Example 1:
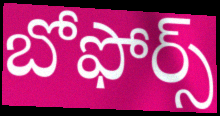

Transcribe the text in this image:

బోఫోర్స్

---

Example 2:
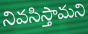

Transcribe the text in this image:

నివసిస్తామని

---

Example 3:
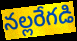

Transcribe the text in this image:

నల్లరేగడి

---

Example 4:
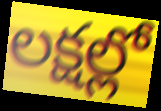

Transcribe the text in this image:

లక్షల్లో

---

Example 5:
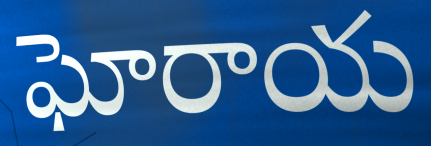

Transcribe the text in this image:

ఘోరాయ